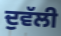
ਦੁਵੱਲੀ